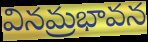
వినమ్రభావన